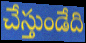
చేస్తుండేది